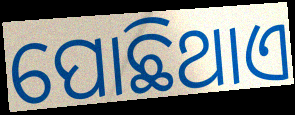
ପୋଛିଥାଏ